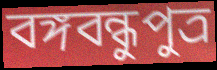
বঙ্গবন্ধুপুত্র